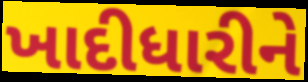
ખાદીધારીને